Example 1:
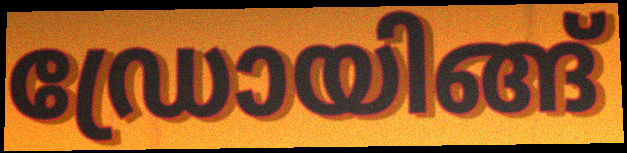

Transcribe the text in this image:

ഡ്രോയിങ്ങ്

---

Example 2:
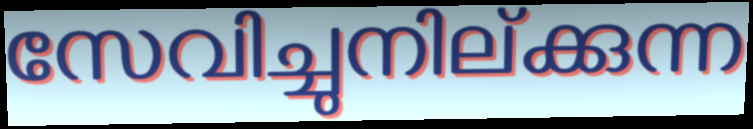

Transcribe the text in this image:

സേവിച്ചുനില്ക്കുന്ന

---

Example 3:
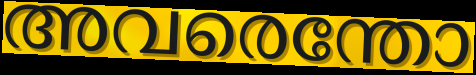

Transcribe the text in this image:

അവരെന്തോ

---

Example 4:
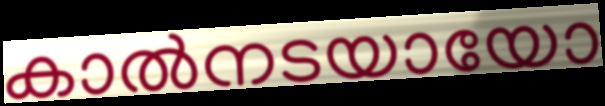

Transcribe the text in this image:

കാൽനടയായോ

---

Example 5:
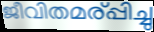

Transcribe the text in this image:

ജീവിതമര്പ്പിച്ചു